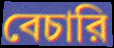
বেচারি